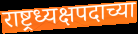
राष्ट्रध्यक्षपदाच्या